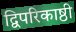
द्विपरिकाष्ठी